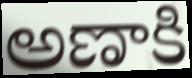
అణాకి